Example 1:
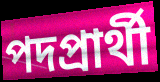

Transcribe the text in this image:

পদপ্রার্থী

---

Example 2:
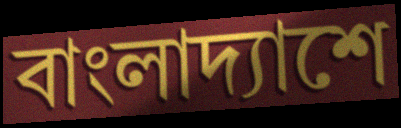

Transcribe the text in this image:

বাংলাদ্যাশে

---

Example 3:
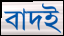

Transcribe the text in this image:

বাদই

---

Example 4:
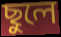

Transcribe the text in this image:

ছুলে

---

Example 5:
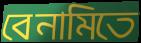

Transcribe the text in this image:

বেনামিতে